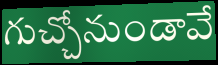
గుచ్చోనుండావే